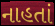
નાહતાં